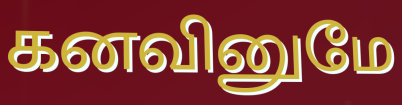
கனவினுமே